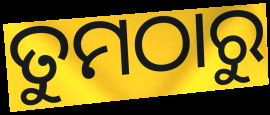
ତୁମଠାରୁ